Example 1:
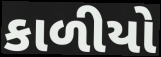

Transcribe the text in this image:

કાળીયો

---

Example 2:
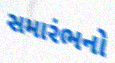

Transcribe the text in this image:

સમારંભનો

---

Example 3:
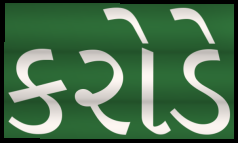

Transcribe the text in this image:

કરોડે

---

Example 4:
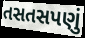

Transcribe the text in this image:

તસતસપણું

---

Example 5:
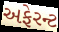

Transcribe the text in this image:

અફેરન્ટ